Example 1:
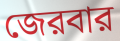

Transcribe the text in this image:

জেরবার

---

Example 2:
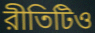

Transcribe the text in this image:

রীতিটিও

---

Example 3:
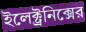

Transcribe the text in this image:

ইলেক্ট্রনিক্সের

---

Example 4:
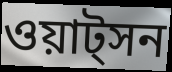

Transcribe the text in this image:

ওয়াট্সন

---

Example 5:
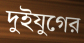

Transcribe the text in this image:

দুইযুগের